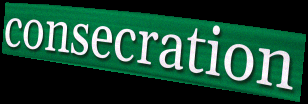
consecration